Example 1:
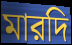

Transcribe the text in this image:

মারদি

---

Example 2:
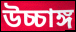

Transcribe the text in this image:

উচ্চাঙ্গ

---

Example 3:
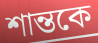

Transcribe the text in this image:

শান্তকে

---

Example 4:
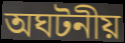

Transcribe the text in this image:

অঘটনীয়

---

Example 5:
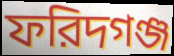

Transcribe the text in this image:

ফরিদগঞ্জ